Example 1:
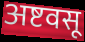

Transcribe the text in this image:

अष्टवसू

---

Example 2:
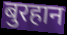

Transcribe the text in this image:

बुरहान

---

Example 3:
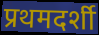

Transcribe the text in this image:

प्रथमदर्शी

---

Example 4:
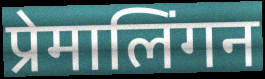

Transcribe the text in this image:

प्रेमालिंगन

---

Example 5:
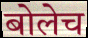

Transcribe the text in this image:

बोलेच